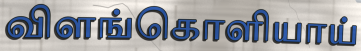
விளங்கொளியாய்